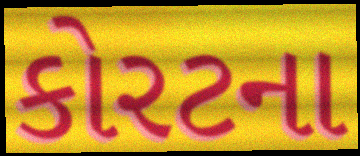
કોરટના